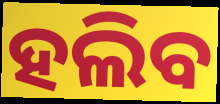
ହଲିବ